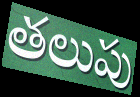
తలుపు